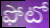
ఫోటో